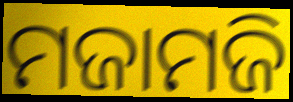
ମଜାମଜି